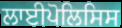
ਲਾਈਪੋਲਿਸਿਸ